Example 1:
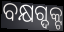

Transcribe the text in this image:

ବକ୍ଷଗ୍ଦକ୍ଟ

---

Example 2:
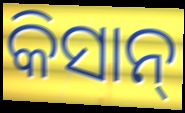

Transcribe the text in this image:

କିସାନ୍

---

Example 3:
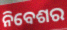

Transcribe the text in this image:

ନିବେଶର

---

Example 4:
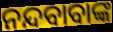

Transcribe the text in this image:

ନନ୍ଦବାବାଙ୍କ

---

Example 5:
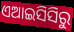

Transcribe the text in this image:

ଏଆଇସିସିରୁ